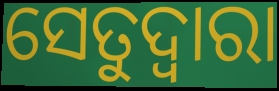
ସେତୁଦ୍ୱାରା